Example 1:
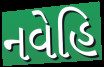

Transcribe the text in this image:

નવેહિ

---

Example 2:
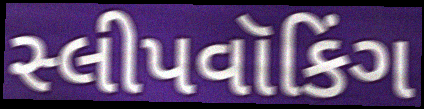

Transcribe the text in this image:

સ્લીપવૉકિંગ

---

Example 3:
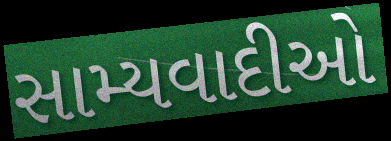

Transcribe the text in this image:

સામ્યવાદીઓ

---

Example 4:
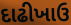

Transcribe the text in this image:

દાઢીખાઉ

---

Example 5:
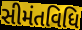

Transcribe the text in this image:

સીમંતવિધિ